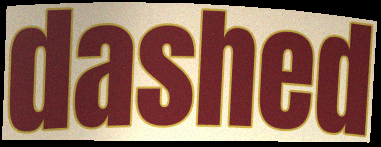
dashed